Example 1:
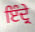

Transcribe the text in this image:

ਇੰਦ੍ਰੇ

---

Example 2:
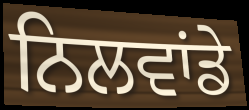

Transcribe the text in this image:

ਨਿਲਵਾਂਡੇ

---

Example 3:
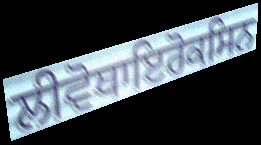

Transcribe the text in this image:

ਲੀਵੋਥਾਇਰੋਕਸਿਨ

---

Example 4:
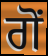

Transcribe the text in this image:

ਗੋਂ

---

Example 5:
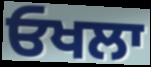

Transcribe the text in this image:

ਓਖਲਾ